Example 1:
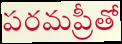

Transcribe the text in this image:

పరమప్రీతో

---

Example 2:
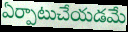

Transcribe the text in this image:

ఏర్పాటుచేయడమే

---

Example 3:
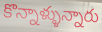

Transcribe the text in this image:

కొన్నాళ్ళున్నారు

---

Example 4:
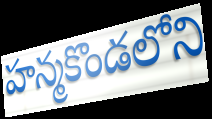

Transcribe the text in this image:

హన్మకొండలోని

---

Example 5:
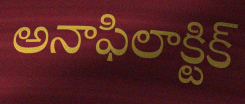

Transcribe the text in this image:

అనాఫిలాక్టిక్